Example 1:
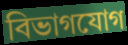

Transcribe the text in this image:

বিভাগযোগ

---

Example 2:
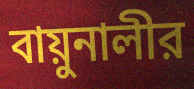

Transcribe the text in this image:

বায়ুনালীর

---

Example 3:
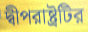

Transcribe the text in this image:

দ্বীপরাষ্ট্রটির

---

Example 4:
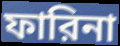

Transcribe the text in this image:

ফারিনা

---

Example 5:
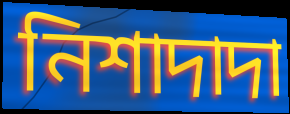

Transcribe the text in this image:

নিশাদাদা